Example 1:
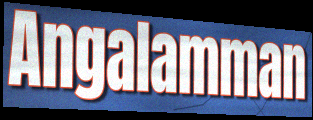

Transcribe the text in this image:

Angalamman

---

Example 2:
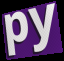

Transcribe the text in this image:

py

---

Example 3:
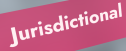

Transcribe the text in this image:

Jurisdictional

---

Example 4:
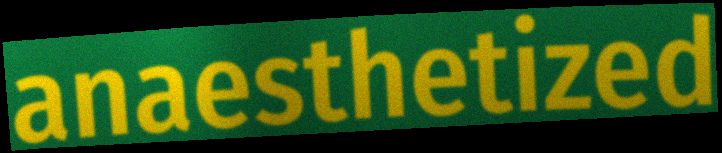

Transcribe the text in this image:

anaesthetized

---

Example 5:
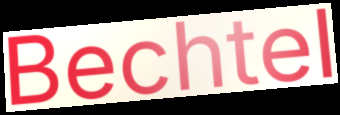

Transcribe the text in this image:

Bechtel